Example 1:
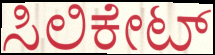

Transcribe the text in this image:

ಸಿಲಿಕೇಟ್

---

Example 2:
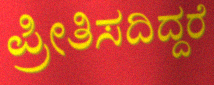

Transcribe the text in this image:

ಪ್ರೀತಿಸದಿದ್ದರೆ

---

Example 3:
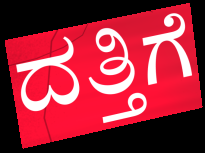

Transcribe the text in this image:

ದತ್ತಿಗೆ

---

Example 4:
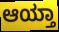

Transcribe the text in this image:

ಆಯ್ತಾ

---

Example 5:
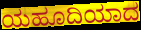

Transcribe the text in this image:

ಯಹೂದಿಯಾದ